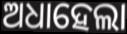
ଅଧାହେଲା